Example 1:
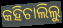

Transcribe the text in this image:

କହିଚାଲିଲୁ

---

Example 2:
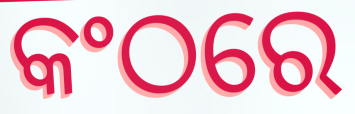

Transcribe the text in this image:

କଂଠରେ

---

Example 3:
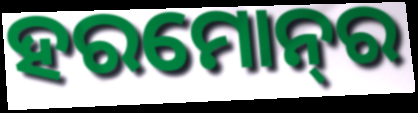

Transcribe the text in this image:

ହରମୋନ୍‍ର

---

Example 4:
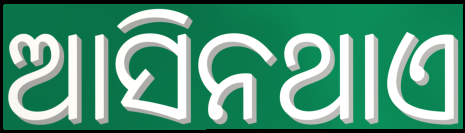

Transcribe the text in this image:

ଆସିନଥାଏ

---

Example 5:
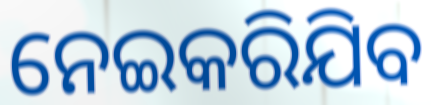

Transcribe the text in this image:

ନେଇକରିଯିବ